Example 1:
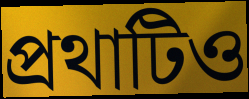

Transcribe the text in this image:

প্রথাটিও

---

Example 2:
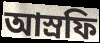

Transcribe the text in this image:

আস্রফি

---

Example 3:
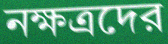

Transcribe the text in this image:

নক্ষত্রদের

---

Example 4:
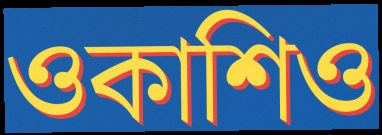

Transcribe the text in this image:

ওকাশিও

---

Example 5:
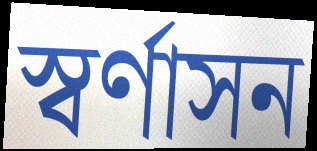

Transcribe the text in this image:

স্বর্ণাসন